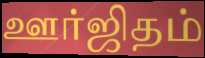
ஊர்ஜிதம்